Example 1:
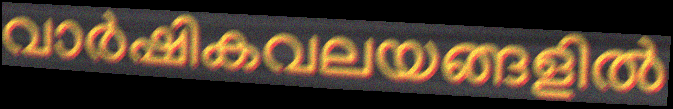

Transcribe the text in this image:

വാർഷികവലയങ്ങളിൽ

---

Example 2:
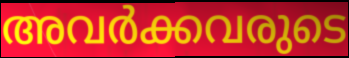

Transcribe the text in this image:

അവർക്കവരുടെ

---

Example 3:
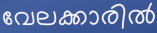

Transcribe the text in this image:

വേലക്കാരിൽ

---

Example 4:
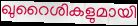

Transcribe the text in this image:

ഖുറൈശികളുമായി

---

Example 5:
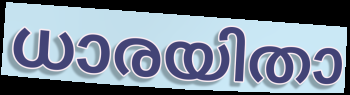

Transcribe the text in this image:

ധാരയിതാ